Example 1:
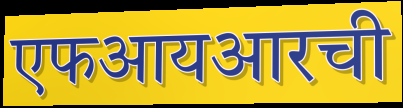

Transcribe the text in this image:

एफआयआरची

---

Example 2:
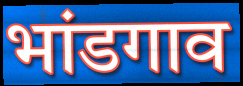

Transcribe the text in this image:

भांडगाव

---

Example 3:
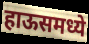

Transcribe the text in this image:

हाऊसमध्ये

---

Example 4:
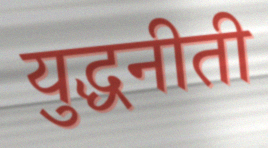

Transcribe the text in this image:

युद्धनीती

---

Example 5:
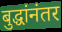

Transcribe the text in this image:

बुद्धांनंतर